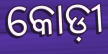
କୋଡ଼ୀ